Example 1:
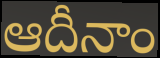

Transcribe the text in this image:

ఆదీనాం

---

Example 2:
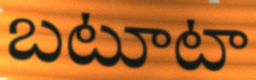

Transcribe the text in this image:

బటూటా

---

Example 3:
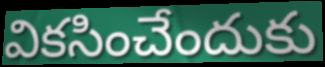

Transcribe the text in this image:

వికసించేందుకు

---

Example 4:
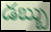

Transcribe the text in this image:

డబ్బు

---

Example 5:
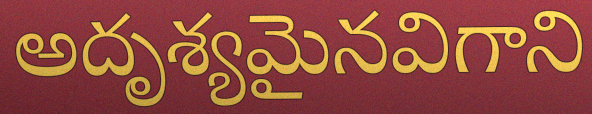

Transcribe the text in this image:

అదృశ్యమైనవిగాని